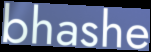
bhashe